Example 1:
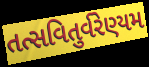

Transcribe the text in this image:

તત્સવિતુર્વરેણ્યમ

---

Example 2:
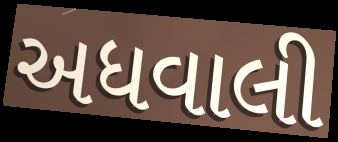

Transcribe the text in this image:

અધવાલી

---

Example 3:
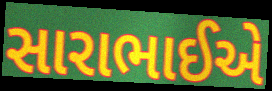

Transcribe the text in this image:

સારાભાઈએ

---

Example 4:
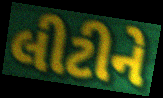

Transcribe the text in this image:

લીટીને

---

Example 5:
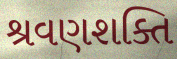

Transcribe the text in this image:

શ્રવણશક્તિ